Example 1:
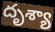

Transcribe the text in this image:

దృశ్యా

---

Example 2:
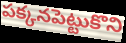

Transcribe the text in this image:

పక్కనపెట్టుకొని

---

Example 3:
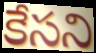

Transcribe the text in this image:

కేసని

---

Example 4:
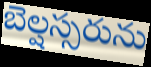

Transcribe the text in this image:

బెల్షస్సరును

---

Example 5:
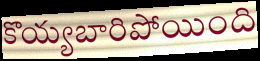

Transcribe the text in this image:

కొయ్యబారిపోయింది